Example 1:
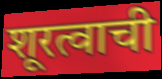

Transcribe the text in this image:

शूरत्वाची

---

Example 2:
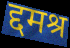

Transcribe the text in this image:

द्दमश्र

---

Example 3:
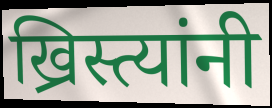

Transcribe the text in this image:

ख्रिस्त्यांनी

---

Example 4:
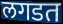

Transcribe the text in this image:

लगडत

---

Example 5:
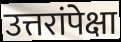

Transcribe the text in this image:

उत्तरांपेक्षा